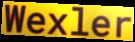
Wexler